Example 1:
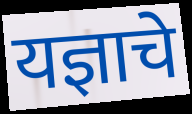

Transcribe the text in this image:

यज्ञाचे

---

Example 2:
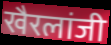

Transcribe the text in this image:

खैरलांजी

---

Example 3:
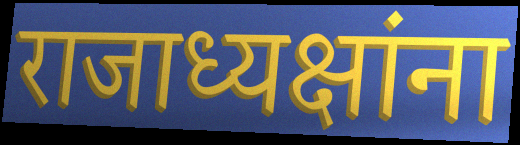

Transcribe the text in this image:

राजाध्यक्षांना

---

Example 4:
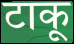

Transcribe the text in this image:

टाकू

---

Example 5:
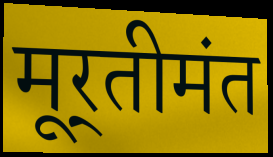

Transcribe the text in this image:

मूर्तीमंत